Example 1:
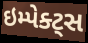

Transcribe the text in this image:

ઇમ્પેક્ટ્સ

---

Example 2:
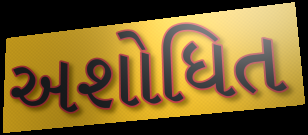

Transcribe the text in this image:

અશોધિત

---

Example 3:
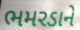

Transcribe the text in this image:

ભમરડાને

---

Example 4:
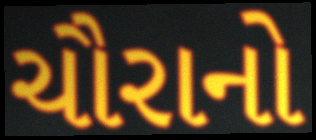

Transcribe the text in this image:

ચૌરાનો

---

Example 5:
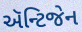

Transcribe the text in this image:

ઍન્ટિજેન